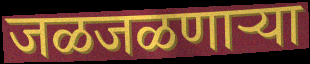
जळजळणाऱ्या